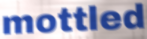
mottled